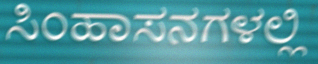
ಸಿಂಹಾಸನಗಳಲ್ಲಿ